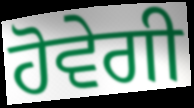
ਹੋਵੇਗੀ